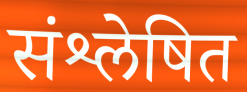
संश्लेषित